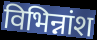
विभिन्नांश